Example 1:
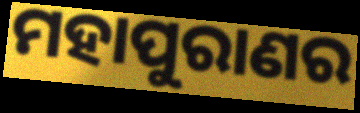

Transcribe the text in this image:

ମହାପୁରାଣର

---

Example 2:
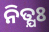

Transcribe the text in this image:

ନିତ୍ଯଃ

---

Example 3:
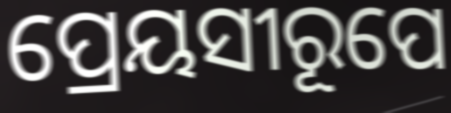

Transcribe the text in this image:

ପ୍ରେୟସୀରୂପେ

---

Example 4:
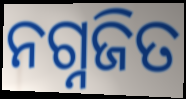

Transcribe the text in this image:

ନଗ୍ନଜିତ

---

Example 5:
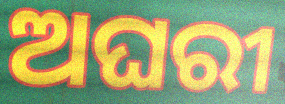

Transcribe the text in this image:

ଅଘରୀ